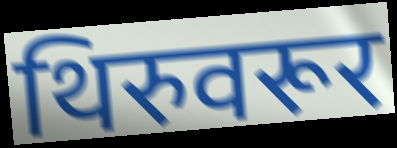
थिरुवरूर